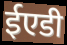
ईएडी